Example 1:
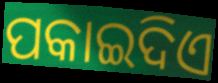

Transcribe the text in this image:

ପକାଇଦିଏ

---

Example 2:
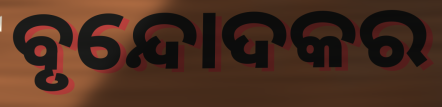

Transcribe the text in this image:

ବୃନ୍ଦୋଦକର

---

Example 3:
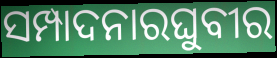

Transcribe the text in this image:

ସମ୍ପାଦନାରଘୁବୀର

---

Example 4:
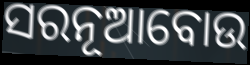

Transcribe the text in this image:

ସରନୂଆବୋଉ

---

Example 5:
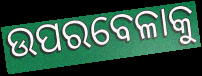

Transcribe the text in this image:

ଉପରବେଳାକୁ